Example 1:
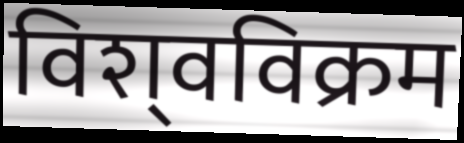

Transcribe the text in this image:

विश्वविक्रम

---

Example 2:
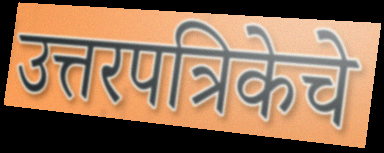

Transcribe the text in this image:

उत्तरपत्रिकेचे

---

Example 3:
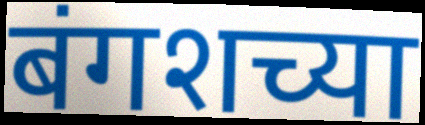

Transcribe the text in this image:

बंगशच्या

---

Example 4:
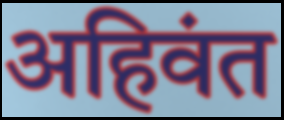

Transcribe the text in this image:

अहिवंत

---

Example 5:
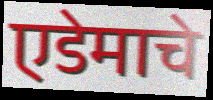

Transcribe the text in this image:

एडेमाचे